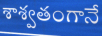
శాశ్వతంగానే